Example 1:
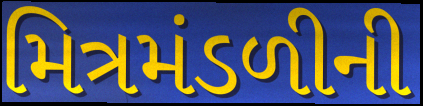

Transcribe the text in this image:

મિત્રમંડળીની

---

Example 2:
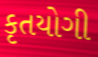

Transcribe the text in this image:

કૃતયોગી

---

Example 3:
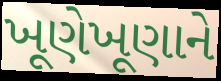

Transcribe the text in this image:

ખૂણેખૂણાને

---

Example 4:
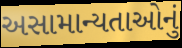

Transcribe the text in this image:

અસામાન્યતાઓનું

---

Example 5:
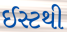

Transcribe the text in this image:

ઈસ્ટથી